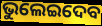
ଭୁଲେଇଦେବ